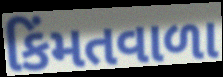
કિંમતવાળા